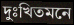
দুঃখিতমনে